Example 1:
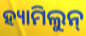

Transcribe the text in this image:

ହ୍ୟାମିଲୁନ୍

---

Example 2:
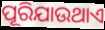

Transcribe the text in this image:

ପୂରିଯାଉଥାଏ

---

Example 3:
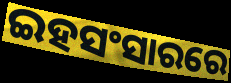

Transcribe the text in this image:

ଇହସଂସାରରେ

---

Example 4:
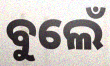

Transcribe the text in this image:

ବୁଲେଁ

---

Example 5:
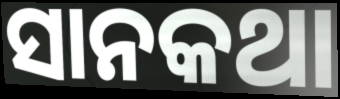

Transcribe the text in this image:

ସାନକଥା